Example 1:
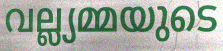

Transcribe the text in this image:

വല്ല്യമ്മയുടെ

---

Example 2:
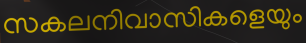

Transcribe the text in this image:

സകലനിവാസികളെയും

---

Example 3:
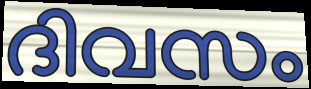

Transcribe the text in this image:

ദിവസം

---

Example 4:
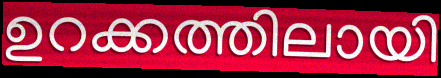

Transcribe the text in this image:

ഉറക്കത്തിലായി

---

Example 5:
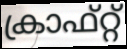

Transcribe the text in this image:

ക്രാഫ്റ്റ്